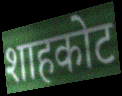
शाहकोट